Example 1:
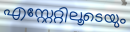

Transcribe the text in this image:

എസ്റ്റേറ്റിലൂടെയും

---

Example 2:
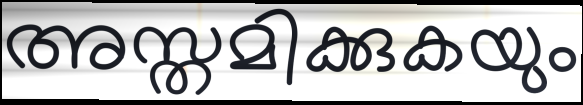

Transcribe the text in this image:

അസ്തമിക്കുകയും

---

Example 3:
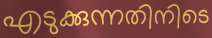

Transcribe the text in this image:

എടുക്കുന്നതിനിടെ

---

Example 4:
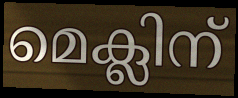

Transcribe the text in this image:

മെക്ലിന്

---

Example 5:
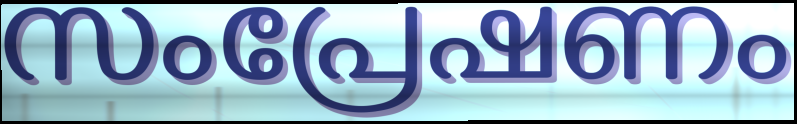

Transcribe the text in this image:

സംപ്രേഷണം